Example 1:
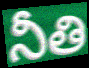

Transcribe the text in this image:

నీతి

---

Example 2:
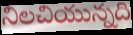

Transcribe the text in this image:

నిలచియున్నది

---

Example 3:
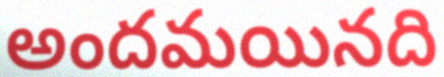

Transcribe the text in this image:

అందమయినది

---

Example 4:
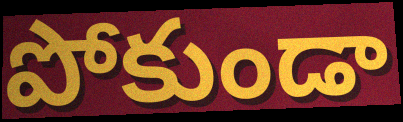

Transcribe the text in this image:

పోకుండా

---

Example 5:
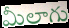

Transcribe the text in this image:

మీలాగు